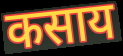
कसाय